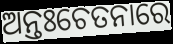
ଅନ୍ତଃଚେତନାରେ